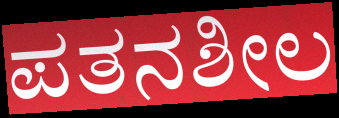
ಪತನಶೀಲ